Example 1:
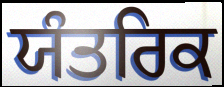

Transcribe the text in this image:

ਯੰਤਰਿਕ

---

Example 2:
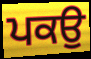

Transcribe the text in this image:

ਪਕਉ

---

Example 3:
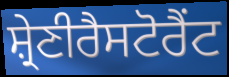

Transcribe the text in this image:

ਸ਼੍ਰੇਣੀਰੈਸਟੋਰੈਂਟ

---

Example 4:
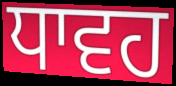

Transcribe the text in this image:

ਧਾਵਹ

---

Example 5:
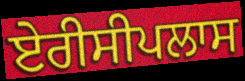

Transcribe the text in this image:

ਏਰੀਸੀਪਲਾਸ